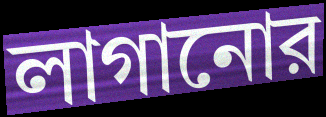
লাগানোর